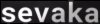
sevaka